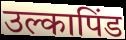
उल्कापिंड